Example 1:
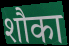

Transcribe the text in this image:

शौका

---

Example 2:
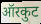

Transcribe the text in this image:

ऑरकुट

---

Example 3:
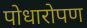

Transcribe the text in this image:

पोधारोपण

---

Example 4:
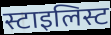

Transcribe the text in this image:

स्टाइलिस्ट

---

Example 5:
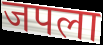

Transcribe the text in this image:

जपला